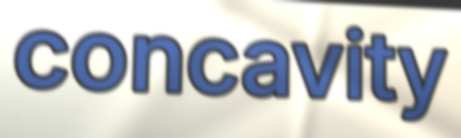
concavity